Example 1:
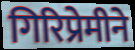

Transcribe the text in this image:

गिरिप्रेमीने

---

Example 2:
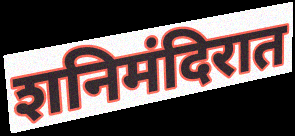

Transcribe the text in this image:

शनिमंदिरात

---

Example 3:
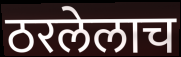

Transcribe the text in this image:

ठरलेलाच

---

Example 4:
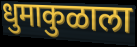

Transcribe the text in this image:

धुमाकुळाला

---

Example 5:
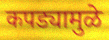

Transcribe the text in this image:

कपड्यामुळे